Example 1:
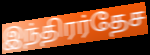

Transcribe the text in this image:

இந்திரர்தேச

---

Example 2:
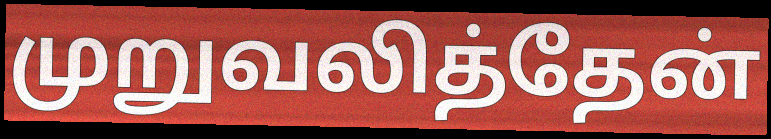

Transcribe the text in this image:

முறுவலித்தேன்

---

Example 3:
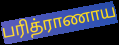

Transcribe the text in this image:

பரித்ராணாய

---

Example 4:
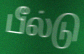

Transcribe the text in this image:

பீல்டு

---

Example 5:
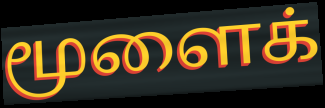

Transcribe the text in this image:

மூளைக்